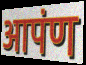
आपंण